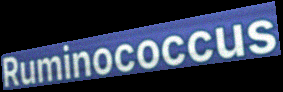
Ruminococcus